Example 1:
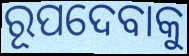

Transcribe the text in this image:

ରୂପଦେବାକୁ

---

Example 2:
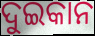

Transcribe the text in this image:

ଦୁଇକାନ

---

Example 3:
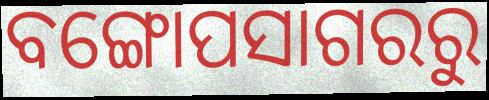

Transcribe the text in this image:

ବଙ୍ଗୋପସାଗରରୁ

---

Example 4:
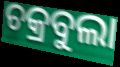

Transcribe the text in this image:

ଚକ୍ରବୁଲା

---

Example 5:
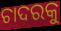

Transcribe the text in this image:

ଚାଦରକୁ